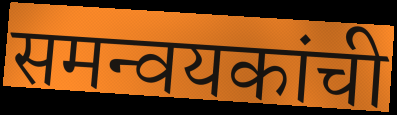
समन्वयकांची